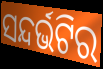
ସନ୍ଦର୍ଭଟିର